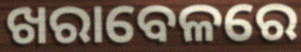
ଖରାବେଳରେ